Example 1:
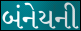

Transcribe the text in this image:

બંનેયની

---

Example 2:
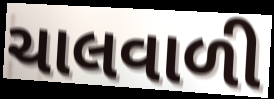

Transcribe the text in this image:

ચાલવાળી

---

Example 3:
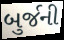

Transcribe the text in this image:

બુર્જની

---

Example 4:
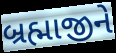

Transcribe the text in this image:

બ્રહ્માજીને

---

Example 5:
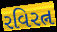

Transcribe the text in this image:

રવિરત્ન